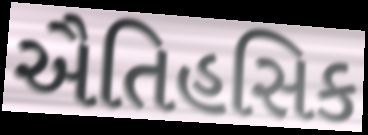
ઐતિહસિક